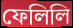
ফেলিলি